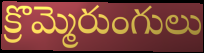
క్రొమ్మెరుంగులు